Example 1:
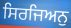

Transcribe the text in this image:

ਸਿਰਜਿਅਨੁ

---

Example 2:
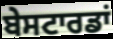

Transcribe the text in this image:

ਬੇਸਟਾਰਡਾਂ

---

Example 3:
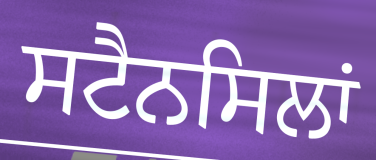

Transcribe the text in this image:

ਸਟੈਨਸਿਲਾਂ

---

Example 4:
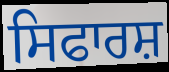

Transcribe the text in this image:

ਸਿਫਾਰਸ਼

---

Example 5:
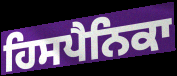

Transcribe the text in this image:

ਹਿਸਪੈਨਿਕਾ